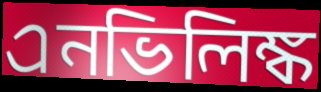
এনভিলিঙ্ক